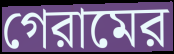
গেরামের